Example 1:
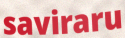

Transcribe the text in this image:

saviraru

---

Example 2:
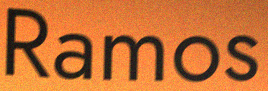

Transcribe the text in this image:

Ramos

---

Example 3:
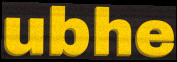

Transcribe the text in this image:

ubhe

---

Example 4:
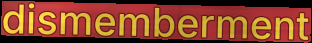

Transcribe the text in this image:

dismemberment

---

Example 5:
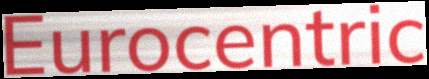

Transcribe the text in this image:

Eurocentric